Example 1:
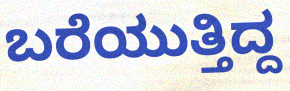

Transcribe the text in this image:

ಬರೆಯುತ್ತಿದ್ದ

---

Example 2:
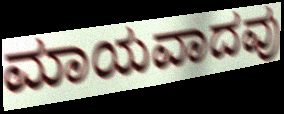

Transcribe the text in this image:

ಮಾಯವಾದವು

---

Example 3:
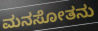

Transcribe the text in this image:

ಮನಸೋತನು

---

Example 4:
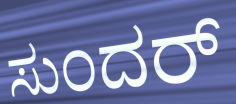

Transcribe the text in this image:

ಸುಂದರ್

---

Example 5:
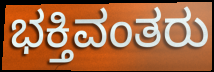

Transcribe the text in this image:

ಭಕ್ತಿವಂತರು